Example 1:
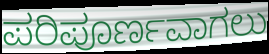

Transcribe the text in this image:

ಪರಿಪೂರ್ಣವಾಗಲು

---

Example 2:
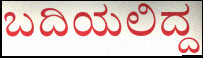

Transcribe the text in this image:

ಬದಿಯಲಿದ್ದ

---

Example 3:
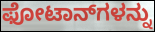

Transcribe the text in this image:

ಫೋಟಾನ್‌ಗಳನ್ನು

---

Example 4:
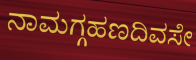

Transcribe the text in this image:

ನಾಮಗ್ಗಹಣದಿವಸೇ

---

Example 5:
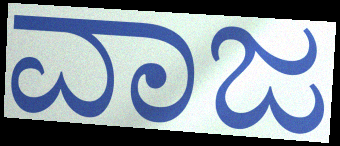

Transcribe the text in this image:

ವಾಜ